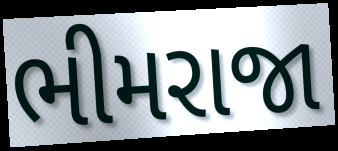
ભીમરાજા